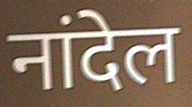
नांदेल